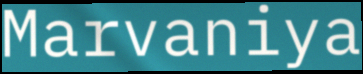
Marvaniya